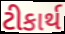
ટીકાર્થ